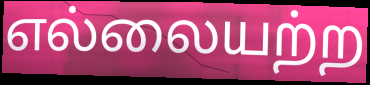
எல்லையற்ற